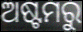
ଅଷ୍ଟମରୁ